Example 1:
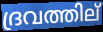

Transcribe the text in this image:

ദ്രവത്തില്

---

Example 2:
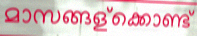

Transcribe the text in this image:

മാസങ്ങള്ക്കൊണ്ട്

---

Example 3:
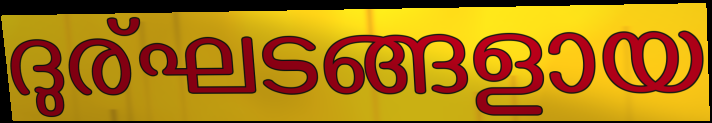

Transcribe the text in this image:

ദുര്ഘടങ്ങളായ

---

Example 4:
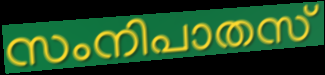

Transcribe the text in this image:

സംനിപാതസ്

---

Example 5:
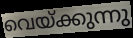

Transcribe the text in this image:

വെയ്ക്കുന്നു